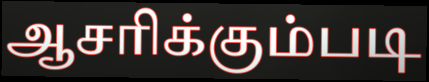
ஆசரிக்கும்படி